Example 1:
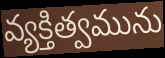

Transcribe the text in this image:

వ్యక్తిత్వమును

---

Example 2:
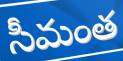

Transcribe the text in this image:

సీమంత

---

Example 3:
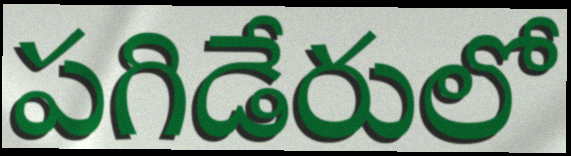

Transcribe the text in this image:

పగిడేరులో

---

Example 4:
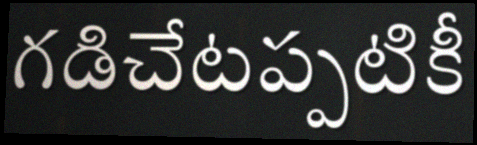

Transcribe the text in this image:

గడిచేటప్పటికీ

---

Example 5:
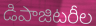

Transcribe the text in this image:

డిపాజిటరీల